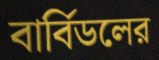
বার্বিডলের